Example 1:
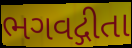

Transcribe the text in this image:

ભગવદ્ગીતા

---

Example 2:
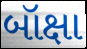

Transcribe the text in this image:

બૉક્ષા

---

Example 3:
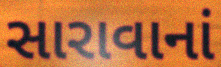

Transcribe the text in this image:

સારાવાનાં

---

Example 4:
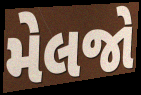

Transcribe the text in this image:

મેલજો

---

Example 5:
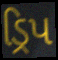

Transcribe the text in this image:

ડ્રિપ